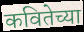
कवितेच्या